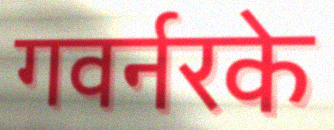
गवर्नरके